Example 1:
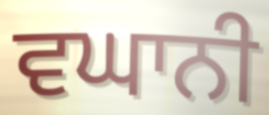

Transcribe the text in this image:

ਵਘਾਨੀ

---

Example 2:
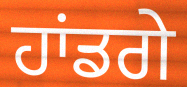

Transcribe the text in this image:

ਹਾਂਡਗੇ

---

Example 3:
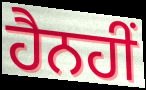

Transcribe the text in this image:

ਹੈਨਹੀਂ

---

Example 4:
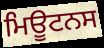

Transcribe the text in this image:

ਮਿਊਟਨਸ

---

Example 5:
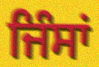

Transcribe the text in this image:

ਜਿੰਸਾਂ